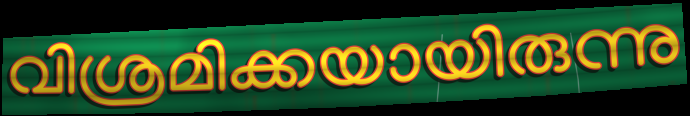
വിശ്രമിക്കയായിരുന്നു